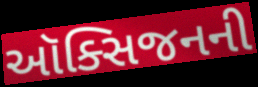
ઑક્સિજનની